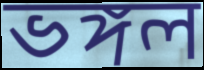
ভঙ্গল